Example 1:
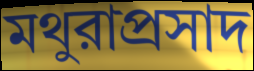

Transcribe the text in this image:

মথুরাপ্রসাদ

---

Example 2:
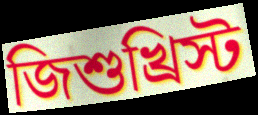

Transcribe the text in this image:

জিশুখ্রিস্ট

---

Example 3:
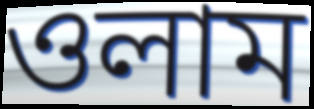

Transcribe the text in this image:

ওলাম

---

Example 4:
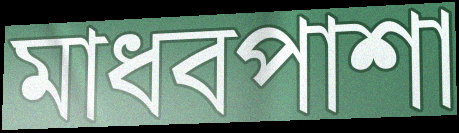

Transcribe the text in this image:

মাধবপাশা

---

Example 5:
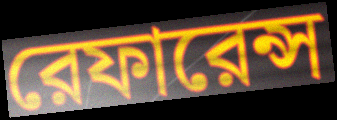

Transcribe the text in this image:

রেফারেন্স